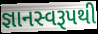
જ્ઞાનસ્વરૂપથી